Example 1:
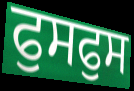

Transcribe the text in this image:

ਫੁਸਫੁਸ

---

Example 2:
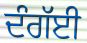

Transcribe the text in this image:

ਦੰਗੱਈ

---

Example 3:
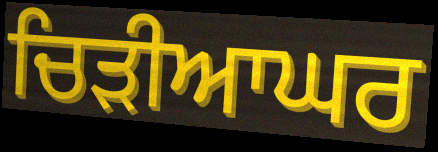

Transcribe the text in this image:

ਚਿੜੀਆਘਰ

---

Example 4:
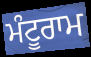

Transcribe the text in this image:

ਮੰਟੂਰਾਮ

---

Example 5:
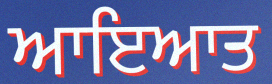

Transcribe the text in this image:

ਆਇਆਤ